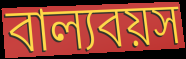
বাল্যবয়স